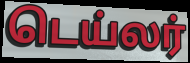
டெய்லர்